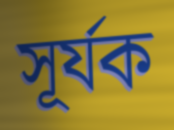
সূৰ্যক